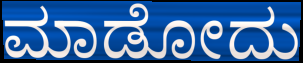
ಮಾಡೋದು